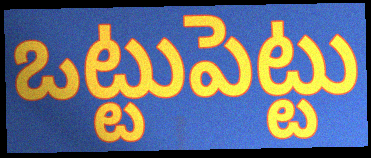
ఒట్టుపెట్టు